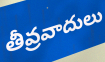
తీవ్రవాదులు